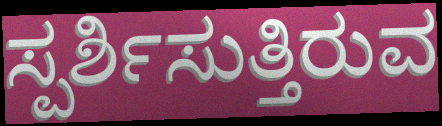
ಸ್ಪರ್ಶಿಸುತ್ತಿರುವ